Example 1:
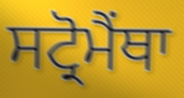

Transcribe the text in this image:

ਸਟ੍ਰੋਮੈਂਥਾ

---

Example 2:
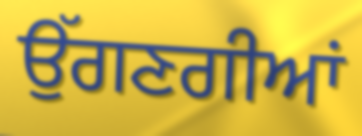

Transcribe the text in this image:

ਉੱਗਣਗੀਆਂ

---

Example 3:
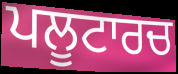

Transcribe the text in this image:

ਪਲੂਟਾਰਚ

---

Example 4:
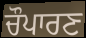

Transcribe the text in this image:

ਚੌਪਾਰਣ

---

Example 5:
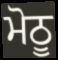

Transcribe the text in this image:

ਮੋਠੂ